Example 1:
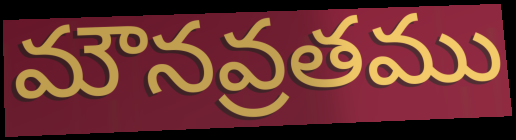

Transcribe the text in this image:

మౌనవ్రతము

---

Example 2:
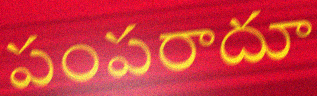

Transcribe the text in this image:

పంపరాదూ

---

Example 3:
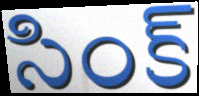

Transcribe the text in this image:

సింక్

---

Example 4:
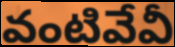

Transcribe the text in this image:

వంటివేవీ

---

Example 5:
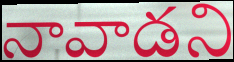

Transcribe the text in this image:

నావాడని